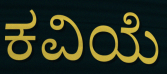
ಕವಿಯೆ